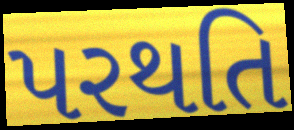
પરથતિ